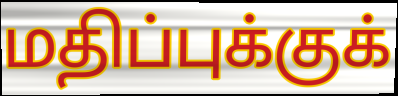
மதிப்புக்குக்